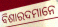
ବିଶାରଦମାନେ